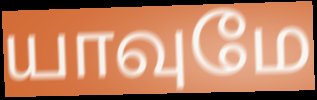
யாவுமே